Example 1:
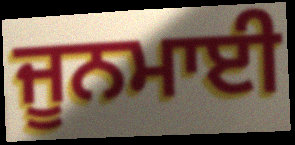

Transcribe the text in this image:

ਜੂਨਮਾਈ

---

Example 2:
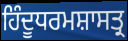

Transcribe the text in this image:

ਹਿੰਦੂਧਰਮਸ਼ਾਸਤ੍ਰ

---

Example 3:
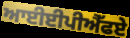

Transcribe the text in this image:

ਆਈਈਪੀਐੱਫਏ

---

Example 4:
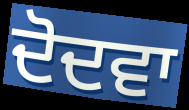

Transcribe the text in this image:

ਦੋਦਵਾ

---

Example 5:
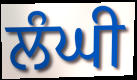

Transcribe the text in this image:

ਲੰਘੀ